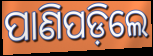
ପାଣିପଡ଼ିଲେ